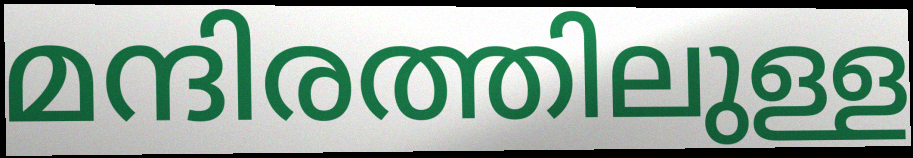
മന്ദിരത്തിലുള്ള